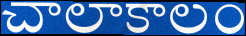
చాలాకాలం